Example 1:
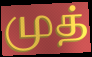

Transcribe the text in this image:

முத்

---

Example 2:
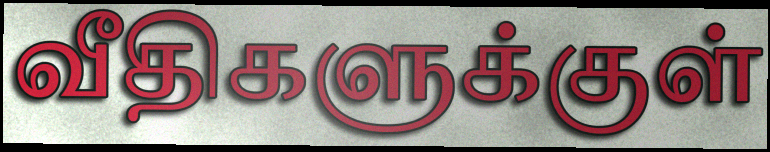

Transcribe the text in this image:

வீதிகளுக்குள்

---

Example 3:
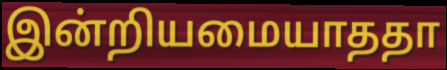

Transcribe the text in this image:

இன்றியமையாததா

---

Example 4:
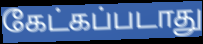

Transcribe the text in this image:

கேட்கப்படாது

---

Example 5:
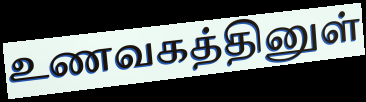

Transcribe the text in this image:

உணவகத்தினுள்